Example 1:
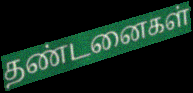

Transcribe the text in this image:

தண்டனைகள்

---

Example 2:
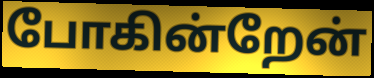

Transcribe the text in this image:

போகின்றேன்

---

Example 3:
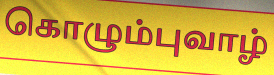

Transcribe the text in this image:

கொழும்புவாழ்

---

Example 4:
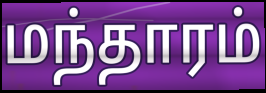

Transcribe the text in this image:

மந்தாரம்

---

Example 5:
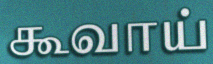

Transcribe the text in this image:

கூவாய்